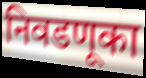
निवडणूका